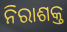
ନିରାଶକ୍ତ